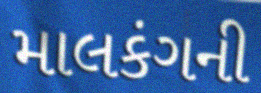
માલકંગની